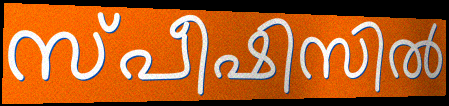
സ്പീഷിസിൽ